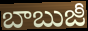
బాబుజీ